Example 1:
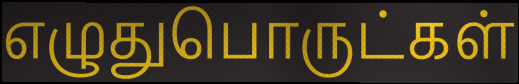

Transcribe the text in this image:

எழுதுபொருட்கள்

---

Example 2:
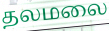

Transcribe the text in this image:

தலமலை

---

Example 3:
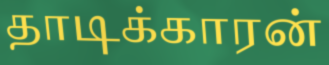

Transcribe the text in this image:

தாடிக்காரன்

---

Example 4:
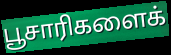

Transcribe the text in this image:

பூசாரிகளைக்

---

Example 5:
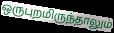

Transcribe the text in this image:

ஒருபுறமிருந்தாலும்